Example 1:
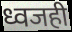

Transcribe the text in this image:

ध्वजही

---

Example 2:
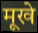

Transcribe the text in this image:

मूखे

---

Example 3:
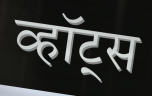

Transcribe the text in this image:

व्हॉट्‌स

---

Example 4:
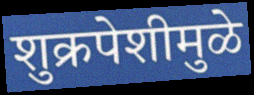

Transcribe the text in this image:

शुक्रपेशीमुळे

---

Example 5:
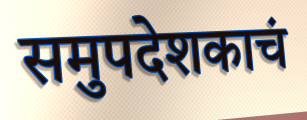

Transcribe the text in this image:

समुपदेशकाचं